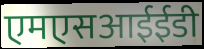
एमएसआईईडी